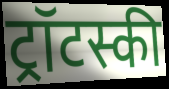
ट्रॉटस्की